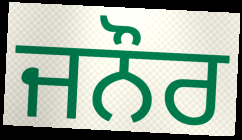
ਜਨੌਰ